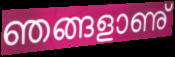
ഞങ്ങളാണു്